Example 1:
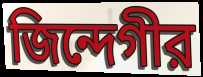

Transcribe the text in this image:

জিন্দেগীর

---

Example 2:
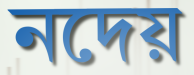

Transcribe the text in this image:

নদেয়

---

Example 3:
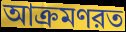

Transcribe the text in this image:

আক্রমণরত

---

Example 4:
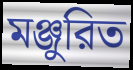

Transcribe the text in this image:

মঞ্জুরিত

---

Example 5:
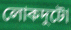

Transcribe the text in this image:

লোকদুটো